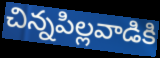
చిన్నపిల్లవాడికి